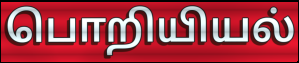
பொறியியல்